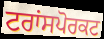
ਟਰਾਂਸਪੋਰਕਟ